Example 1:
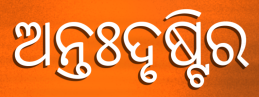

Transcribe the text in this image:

ଅନ୍ତଃଦୃଷ୍ଟିର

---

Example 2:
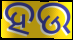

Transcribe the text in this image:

ହଉ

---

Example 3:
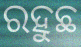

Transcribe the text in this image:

ରହୁଛ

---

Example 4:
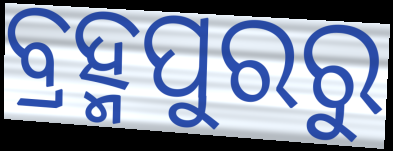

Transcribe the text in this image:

ବ୍ରହ୍ମପୁରରୁ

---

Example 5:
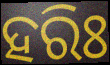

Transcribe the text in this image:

ହରିଃ